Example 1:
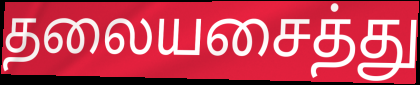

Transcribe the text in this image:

தலையசைத்து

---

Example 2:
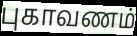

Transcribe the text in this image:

புகாவணம்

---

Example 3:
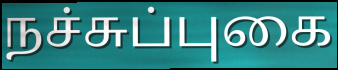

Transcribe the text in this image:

நச்சுப்புகை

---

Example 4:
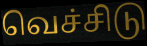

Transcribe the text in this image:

வெச்சிடு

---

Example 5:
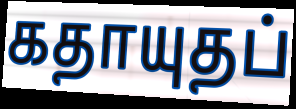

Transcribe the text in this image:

கதாயுதப்